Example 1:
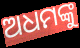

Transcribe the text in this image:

ଅଧମଙ୍କୁ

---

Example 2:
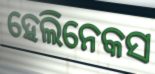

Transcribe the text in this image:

ହେଲିନେକସ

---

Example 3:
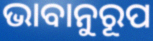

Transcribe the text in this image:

ଭାବାନୁରୂପ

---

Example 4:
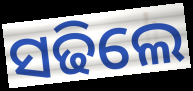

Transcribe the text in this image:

ସଢିଲେ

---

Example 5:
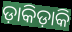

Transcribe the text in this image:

ଡ଼ାକିଡ଼ାକି